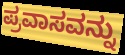
ಪ್ರವಾಸವನ್ನು